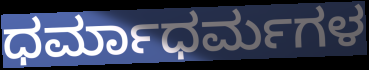
ಧರ್ಮಾಧರ್ಮಗಳ